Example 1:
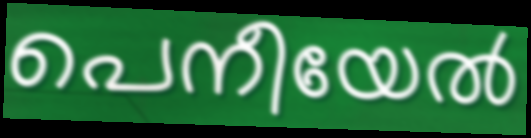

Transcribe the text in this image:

പെനീയേൽ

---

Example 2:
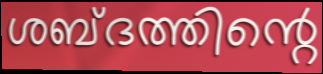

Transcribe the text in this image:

ശബ്ദത്തിന്റെ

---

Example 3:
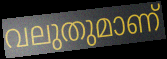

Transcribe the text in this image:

വലുതുമാണ്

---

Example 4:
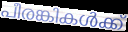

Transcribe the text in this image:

പീരങ്കികൾക്ക്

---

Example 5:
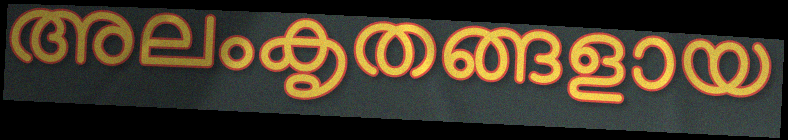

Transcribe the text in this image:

അലംകൃതങ്ങളായ